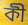
কী